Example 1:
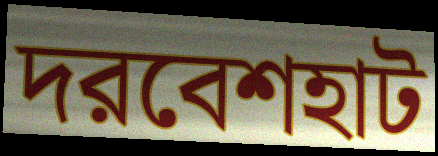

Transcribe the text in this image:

দরবেশহাট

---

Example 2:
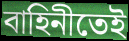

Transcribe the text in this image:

বাহিনীতেই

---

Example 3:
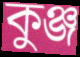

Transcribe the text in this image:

কুঞ্জ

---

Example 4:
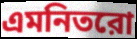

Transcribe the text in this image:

এমনিতরো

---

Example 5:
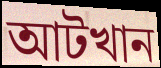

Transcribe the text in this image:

আটখান